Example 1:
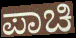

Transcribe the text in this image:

ಪಾಚಿ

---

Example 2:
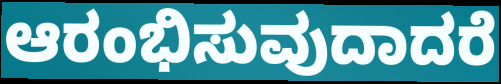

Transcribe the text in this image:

ಆರಂಭಿಸುವುದಾದರೆ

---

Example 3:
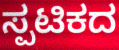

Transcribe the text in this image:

ಸ್ಪಟಿಕದ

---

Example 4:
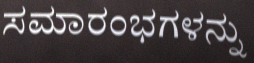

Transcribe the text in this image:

ಸಮಾರಂಭಗಳನ್ನು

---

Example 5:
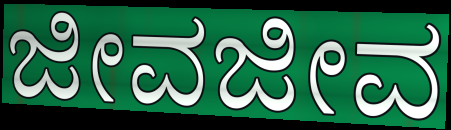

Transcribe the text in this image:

ಜೀವಜೀವ